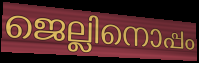
ജെല്ലിനൊപ്പം